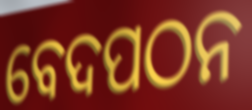
ବେଦପଠନ